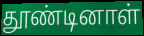
தூண்டினாள்